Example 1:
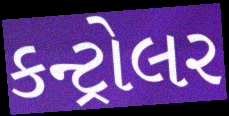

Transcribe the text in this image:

કન્ટ્રોલર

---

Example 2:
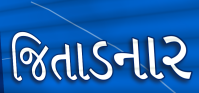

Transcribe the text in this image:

જિતાડનાર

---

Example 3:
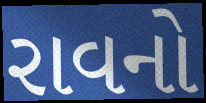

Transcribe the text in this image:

રાવનો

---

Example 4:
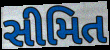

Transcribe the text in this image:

સીમિત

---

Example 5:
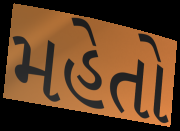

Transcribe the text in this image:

મહેતો